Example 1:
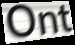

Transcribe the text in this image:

Ont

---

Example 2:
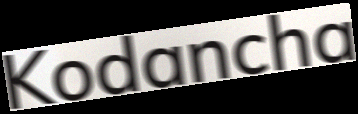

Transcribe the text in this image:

Kodancha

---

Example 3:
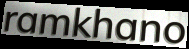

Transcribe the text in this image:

ramkhano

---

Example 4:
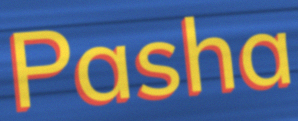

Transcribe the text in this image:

Pasha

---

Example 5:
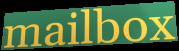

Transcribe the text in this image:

mailbox